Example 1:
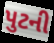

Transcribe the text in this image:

પુટની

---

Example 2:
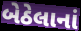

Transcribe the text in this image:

બેઠેલાનાં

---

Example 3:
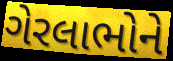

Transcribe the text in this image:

ગેરલાભોને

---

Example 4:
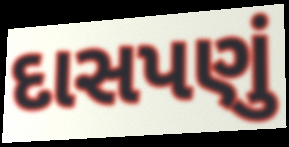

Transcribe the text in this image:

દાસપણું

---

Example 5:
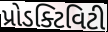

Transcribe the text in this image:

પ્રોડક્ટિવિટી